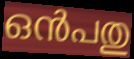
ഒൻപതു